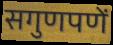
सगुणपणें